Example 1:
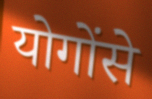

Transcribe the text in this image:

योगोंसे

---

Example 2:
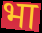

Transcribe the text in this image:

भा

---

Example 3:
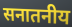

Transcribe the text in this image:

सनातनीय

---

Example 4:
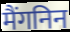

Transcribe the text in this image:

मैंगनिन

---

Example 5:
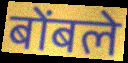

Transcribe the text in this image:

बोंबले